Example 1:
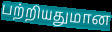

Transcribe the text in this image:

பற்றியதுமான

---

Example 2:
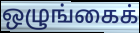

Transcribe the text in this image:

ஒழுங்கைக்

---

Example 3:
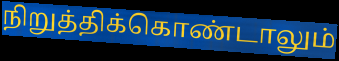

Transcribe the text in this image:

நிறுத்திக்கொண்டாலும்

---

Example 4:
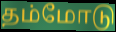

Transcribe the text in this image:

தம்மோடு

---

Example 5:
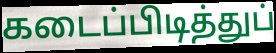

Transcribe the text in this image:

கடைப்பிடித்துப்